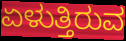
ಏಳುತ್ತಿರುವ